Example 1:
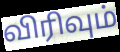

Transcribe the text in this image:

விரிவும்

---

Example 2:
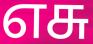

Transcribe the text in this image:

எசு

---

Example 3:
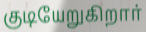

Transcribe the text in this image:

குடியேறுகிறார்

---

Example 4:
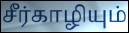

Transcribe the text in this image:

சீர்காழியும்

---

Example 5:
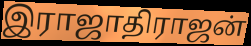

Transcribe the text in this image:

இராஜாதிராஜன்